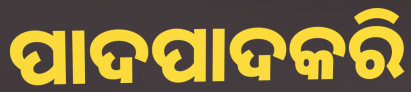
ପାଦପାଦକରି